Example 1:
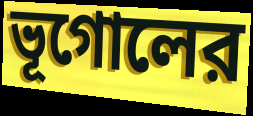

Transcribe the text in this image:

ভূগোলের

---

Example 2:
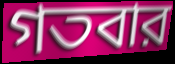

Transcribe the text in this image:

গতবার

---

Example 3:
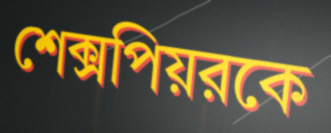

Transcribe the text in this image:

শেক্সপিয়রকে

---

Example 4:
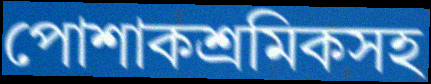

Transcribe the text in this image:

পোশাকশ্রমিকসহ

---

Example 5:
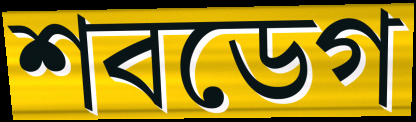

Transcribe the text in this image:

শবডেগ